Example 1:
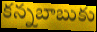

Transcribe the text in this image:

కన్నబాబుకు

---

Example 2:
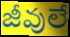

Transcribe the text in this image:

జీవులే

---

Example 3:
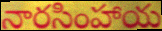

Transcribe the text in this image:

నారసింహాయ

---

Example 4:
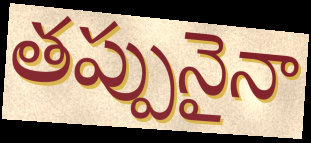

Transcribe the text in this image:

తప్పునైనా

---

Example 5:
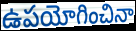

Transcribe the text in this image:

ఉపయోగించినా